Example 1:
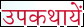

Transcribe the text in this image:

उपकथायें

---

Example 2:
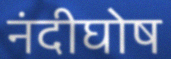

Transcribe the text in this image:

नंदीघोष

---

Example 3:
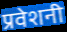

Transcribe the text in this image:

प्रवेशनी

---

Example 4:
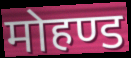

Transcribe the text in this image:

मोहण्ड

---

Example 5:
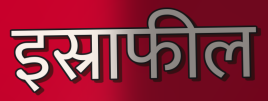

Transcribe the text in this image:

इस्राफील